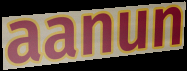
aanun